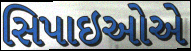
સિપાઇઓએ